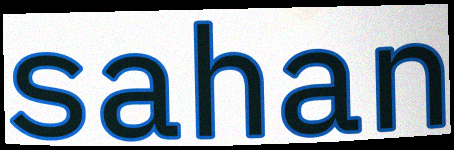
sahan